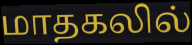
மாதகலில்